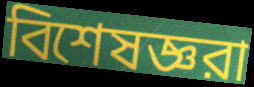
বিশেষজ্ঞরা